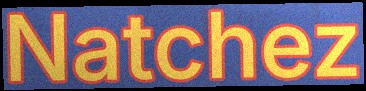
Natchez